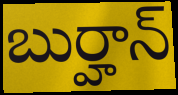
బుర్హాన్